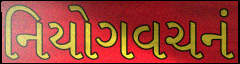
નિયોગવચનં